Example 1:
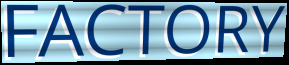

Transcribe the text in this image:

FACTORY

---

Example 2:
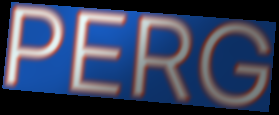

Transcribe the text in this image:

PERG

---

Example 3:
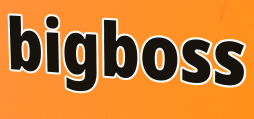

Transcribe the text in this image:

bigboss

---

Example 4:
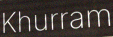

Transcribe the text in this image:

Khurram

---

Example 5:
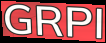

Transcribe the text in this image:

GRPI